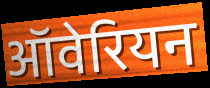
ऑवेरियन